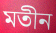
মতীন